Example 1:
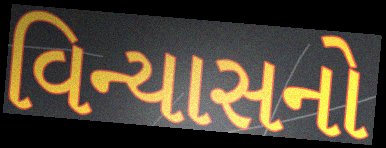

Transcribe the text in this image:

વિન્યાસનો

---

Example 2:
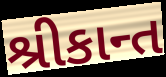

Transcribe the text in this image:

શ્રીકાન્ત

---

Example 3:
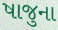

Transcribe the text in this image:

ષાજુના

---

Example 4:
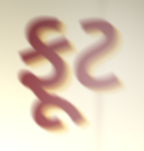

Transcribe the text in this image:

ફૂટ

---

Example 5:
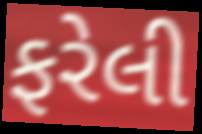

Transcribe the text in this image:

ફરેલી